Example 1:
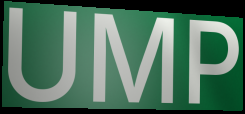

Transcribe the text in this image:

UMP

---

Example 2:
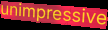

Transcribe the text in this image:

unimpressive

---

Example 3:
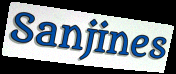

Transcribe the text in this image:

Sanjines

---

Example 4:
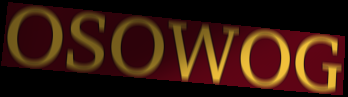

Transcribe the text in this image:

OSOWOG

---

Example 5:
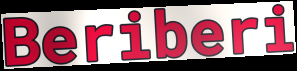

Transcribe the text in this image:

Beriberi